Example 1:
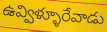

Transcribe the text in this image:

ఉవ్విళ్ళూరేవాడు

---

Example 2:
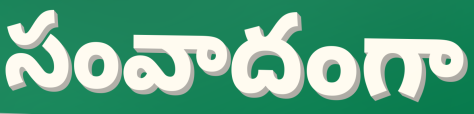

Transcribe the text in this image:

సంవాదంగా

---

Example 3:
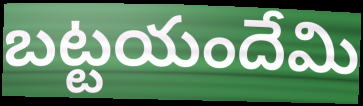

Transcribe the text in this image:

బట్టయందేమి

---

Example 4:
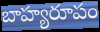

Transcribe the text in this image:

బాహ్యరూపం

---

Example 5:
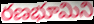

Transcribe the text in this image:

రణభూమిని